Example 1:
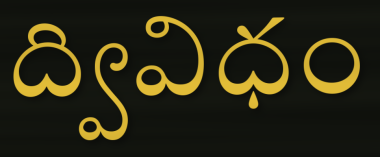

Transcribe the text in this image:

ద్వివిధం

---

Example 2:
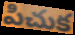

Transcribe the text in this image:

పిచుక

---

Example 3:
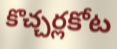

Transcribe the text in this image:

కొచ్చర్లకోట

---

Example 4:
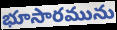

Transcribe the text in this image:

భూసారమును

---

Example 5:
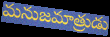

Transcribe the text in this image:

మనుజమాత్రుడు